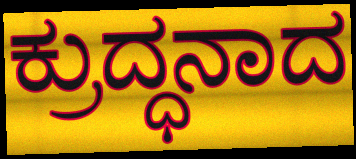
ಕ್ರುದ್ಧನಾದ